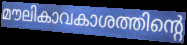
മൗലികാവകാശത്തിന്റെ